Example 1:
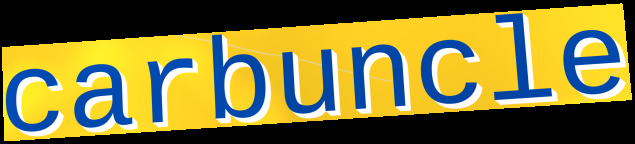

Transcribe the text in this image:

carbuncle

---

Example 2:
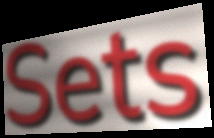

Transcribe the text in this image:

Sets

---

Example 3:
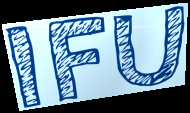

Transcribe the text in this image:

IFU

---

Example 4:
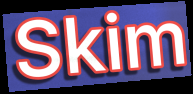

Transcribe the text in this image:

Skim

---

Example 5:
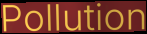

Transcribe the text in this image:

Pollution